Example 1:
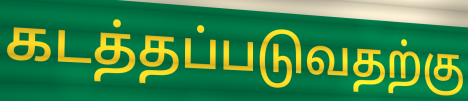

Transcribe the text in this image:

கடத்தப்படுவதற்கு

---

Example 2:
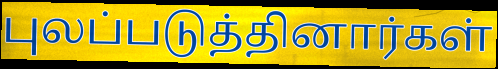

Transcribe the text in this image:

புலப்படுத்தினார்கள்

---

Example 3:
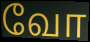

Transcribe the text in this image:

வோ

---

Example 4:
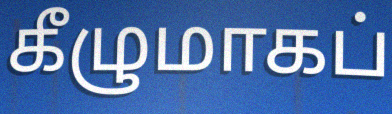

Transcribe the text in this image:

கீழுமாகப்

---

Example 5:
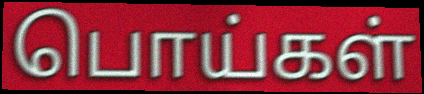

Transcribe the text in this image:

பொய்கள்